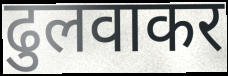
ढुलवाकर